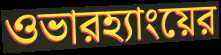
ওভারহ্যাংয়ের